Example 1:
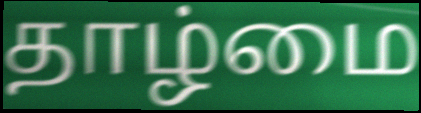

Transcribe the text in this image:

தாழ்மை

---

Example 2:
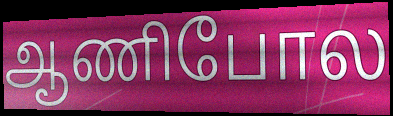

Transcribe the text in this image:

ஆணிபோல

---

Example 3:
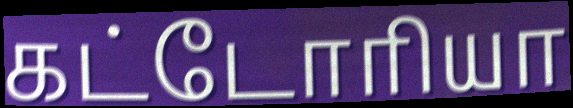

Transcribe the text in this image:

கட்டோரியா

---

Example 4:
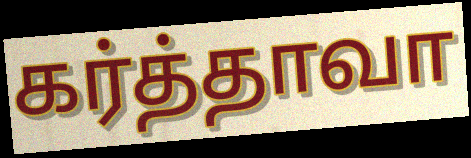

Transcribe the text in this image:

கர்த்தாவா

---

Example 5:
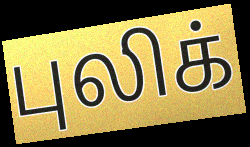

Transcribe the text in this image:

புலிக்